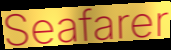
Seafarer